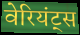
वेरियंट्स